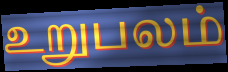
உறுபலம்